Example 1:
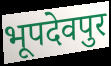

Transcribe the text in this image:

भूपदेवपुर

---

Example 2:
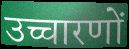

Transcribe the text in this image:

उच्चारणों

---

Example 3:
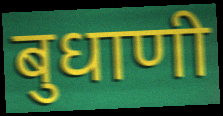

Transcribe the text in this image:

बुधाणी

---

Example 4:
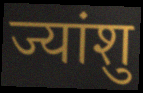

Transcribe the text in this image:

ज्यांशु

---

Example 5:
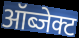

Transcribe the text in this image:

ऑब्‍जेक्‍ट